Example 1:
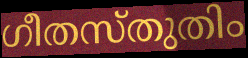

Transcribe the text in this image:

ഗീതസ്തുതിം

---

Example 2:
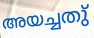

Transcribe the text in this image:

അയച്ചതു്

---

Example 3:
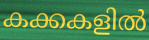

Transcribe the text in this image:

കക്കകളിൽ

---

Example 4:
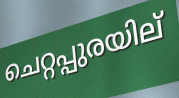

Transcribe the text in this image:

ചെറ്റപ്പുരയില്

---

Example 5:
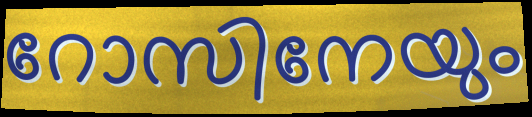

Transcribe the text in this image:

റോസിനേയും